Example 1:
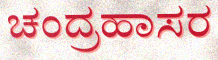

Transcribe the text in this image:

ಚಂದ್ರಹಾಸರ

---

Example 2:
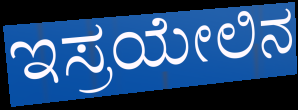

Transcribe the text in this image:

ಇಸ್ರಯೇಲಿನ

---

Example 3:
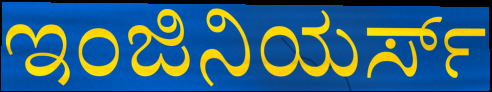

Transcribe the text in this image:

ಇಂಜಿನಿಯರ್ಸ್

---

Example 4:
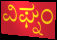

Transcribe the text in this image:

ವಿಘ್ನಂ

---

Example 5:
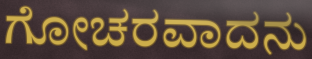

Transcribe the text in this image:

ಗೋಚರವಾದನು